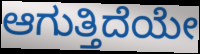
ಆಗುತ್ತಿದೆಯೇ